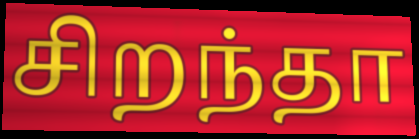
சிறந்தா